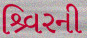
શ્ર્વિરની